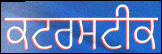
ਕਟਰਸਟੀਕ